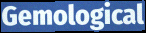
Gemological